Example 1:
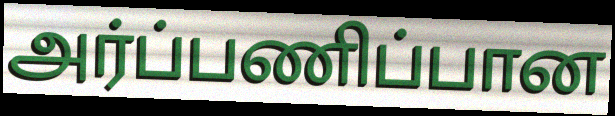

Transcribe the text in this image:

அர்ப்பணிப்பான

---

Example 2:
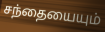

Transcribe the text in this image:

சந்தையையும்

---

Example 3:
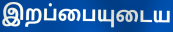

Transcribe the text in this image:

இறப்பையுடைய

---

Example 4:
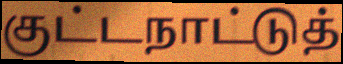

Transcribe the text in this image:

குட்டநாட்டுத்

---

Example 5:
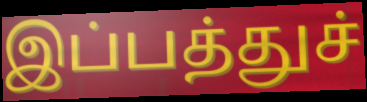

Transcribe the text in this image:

இப்பத்துச்